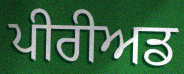
ਪੀਰੀਅਡ